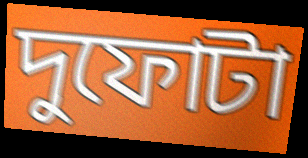
দুফোটা